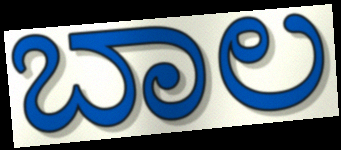
ಬಾಲ